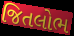
જિતલોભ